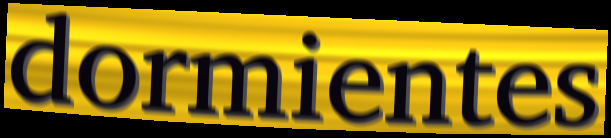
dormientes